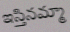
ఇస్తినమ్మా